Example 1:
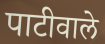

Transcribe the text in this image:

पाटीवाले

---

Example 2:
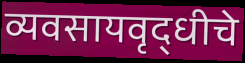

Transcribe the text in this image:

व्यवसायवृद्धीचे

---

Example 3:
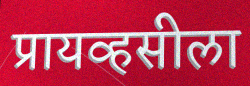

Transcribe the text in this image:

प्रायव्हसीला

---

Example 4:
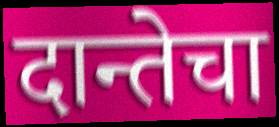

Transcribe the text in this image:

दान्तेचा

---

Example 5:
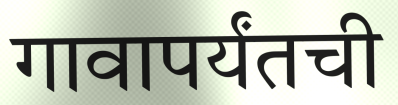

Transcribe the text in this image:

गावापर्यंतची